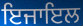
ਇਜਾਇਲ